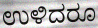
ಉಳಿದರೂ